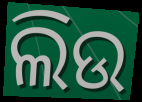
ଲିଉ